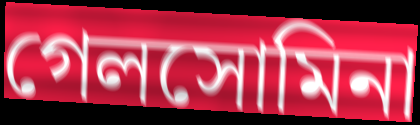
গেলসোমিনা